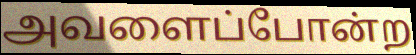
அவளைப்போன்ற